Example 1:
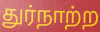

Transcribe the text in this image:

துர்நாற்ற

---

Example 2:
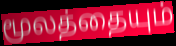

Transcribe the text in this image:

மூலத்தையும்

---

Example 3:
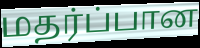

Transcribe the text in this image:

மதர்ப்பான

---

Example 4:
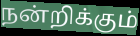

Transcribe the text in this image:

நன்றிக்கும்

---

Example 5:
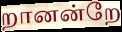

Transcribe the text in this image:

றானன்றே